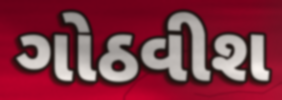
ગોઠવીશ